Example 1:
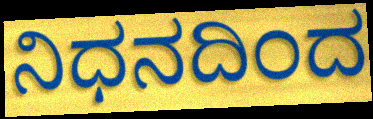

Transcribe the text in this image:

ನಿಧನದಿಂದ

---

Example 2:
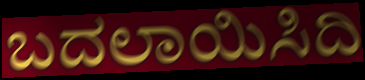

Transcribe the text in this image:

ಬದಲಾಯಿಸಿದಿ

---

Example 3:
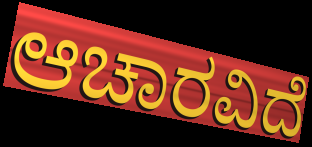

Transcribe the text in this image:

ಆಚಾರವಿದೆ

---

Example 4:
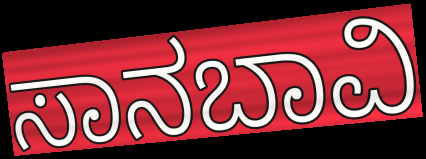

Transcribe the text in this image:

ಸಾನಬಾವಿ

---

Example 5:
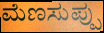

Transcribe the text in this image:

ಮೆಣಸುಪ್ಪು